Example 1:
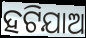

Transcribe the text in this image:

ହଟିଯାଅ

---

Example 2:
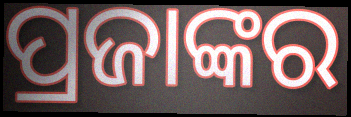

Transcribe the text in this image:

ପ୍ରଜାଙ୍କର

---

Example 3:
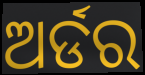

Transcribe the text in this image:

ଅର୍ଡର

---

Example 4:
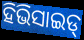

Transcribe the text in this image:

ହିଭିସାଇଡ୍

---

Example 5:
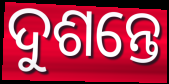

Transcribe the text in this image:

ଦୁଶନ୍ତେ